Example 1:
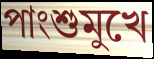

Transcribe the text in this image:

পাংশুমুখে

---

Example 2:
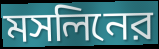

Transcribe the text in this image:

মসলিনের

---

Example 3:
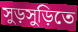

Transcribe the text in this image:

সুড়সুড়িতে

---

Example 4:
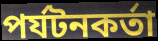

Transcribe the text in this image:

পর্যটনকর্তা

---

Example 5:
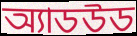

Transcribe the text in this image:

অ্যাডউড